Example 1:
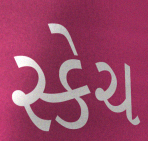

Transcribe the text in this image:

સ્કેચ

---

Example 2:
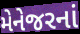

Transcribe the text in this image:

મેનેજરનાં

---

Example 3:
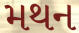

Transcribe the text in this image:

મથન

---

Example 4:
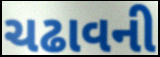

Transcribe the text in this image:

ચઢાવની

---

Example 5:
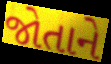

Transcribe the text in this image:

જોતાને